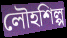
লৌহশিল্প